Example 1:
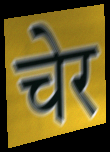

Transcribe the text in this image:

चेर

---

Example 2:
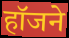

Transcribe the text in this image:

हॉजने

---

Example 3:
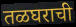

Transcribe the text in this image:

तळघराची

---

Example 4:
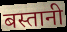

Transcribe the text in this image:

बस्तानी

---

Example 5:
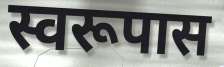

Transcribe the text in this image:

स्वरूपास